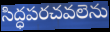
సిద్ధపరచవలెను